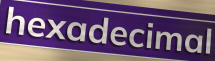
hexadecimal